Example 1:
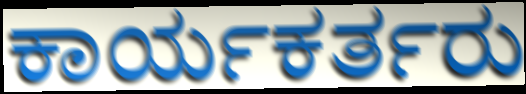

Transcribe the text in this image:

ಕಾರ್ಯಕರ್ತರು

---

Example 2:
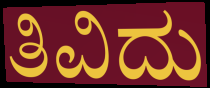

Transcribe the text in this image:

ತಿವಿದು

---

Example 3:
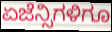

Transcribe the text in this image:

ಏಜೆನ್ಸಿಗಳಿಗೂ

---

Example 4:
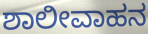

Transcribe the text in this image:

ಶಾಲೀವಾಹನ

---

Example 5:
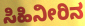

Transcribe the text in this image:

ಸಿಹಿನೀರಿನ